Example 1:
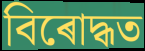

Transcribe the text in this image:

বিৰোদ্ধত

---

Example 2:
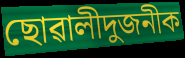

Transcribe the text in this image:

ছোৱালীদুজনীক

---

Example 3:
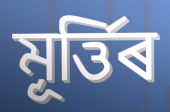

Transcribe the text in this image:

মূৰ্ত্তিৰ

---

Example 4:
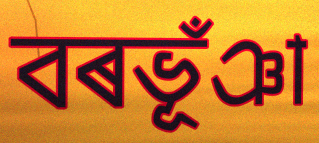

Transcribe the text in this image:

বৰভূঁঞা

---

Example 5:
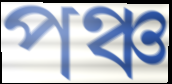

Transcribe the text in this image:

পঞ্চ